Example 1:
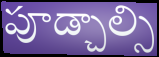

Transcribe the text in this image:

పూడ్చాల్సి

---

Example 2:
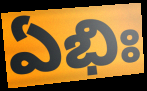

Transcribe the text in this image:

ఏభిః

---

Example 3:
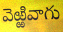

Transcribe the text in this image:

వెఱ్ఱివాగు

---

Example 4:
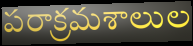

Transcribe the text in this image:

పరాక్రమశాలుల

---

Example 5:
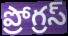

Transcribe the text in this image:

ప్రోగ్రస్